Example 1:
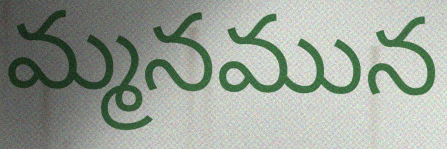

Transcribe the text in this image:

మ్మనమున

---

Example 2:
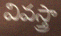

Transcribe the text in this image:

వివస్త్రా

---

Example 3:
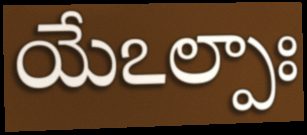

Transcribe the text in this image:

యేఽల్పాః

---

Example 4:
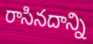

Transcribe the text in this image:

రాసినదాన్ని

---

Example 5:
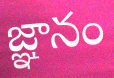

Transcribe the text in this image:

జ్ఞానం